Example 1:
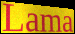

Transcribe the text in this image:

Lama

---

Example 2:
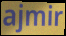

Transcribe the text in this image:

ajmir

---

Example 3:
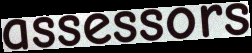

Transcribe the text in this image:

assessors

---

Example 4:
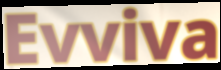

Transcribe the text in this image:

Evviva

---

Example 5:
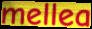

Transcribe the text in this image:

mellea